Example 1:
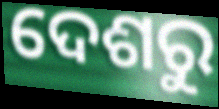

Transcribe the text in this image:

ଦେଶରୁ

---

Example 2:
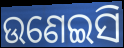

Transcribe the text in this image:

ଉଣେଇସି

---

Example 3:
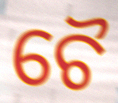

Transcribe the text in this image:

ଚୈ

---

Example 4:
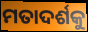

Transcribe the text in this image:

ମତାଦର୍ଶକୁ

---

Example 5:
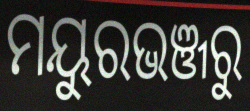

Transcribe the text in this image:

ମୟୁରଭଞ୍ଜରୁ